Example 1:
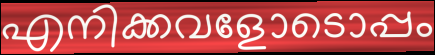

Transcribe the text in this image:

എനിക്കവളോടൊപ്പം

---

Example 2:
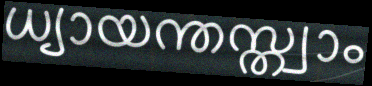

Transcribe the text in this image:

ധ്യായന്തസ്ത്വാം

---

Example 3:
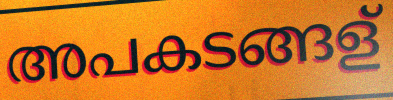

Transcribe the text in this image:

അപകടങ്ങള്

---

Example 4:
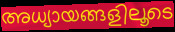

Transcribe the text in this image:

അധ്യായങ്ങളിലൂടെ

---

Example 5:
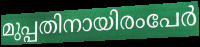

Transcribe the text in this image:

മുപ്പതിനായിരംപേർ